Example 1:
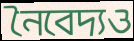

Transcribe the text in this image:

নৈবেদ্যও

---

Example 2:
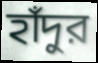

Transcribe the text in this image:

হাঁদুর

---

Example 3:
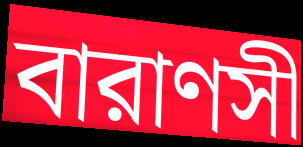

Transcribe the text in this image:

বারাণসী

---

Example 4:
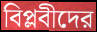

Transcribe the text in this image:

বিপ্লবীদের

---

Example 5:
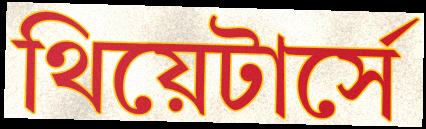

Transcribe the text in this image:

থিয়েটার্সে